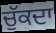
ਚੁੱਕਦਾ